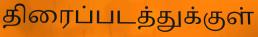
திரைப்படத்துக்குள்